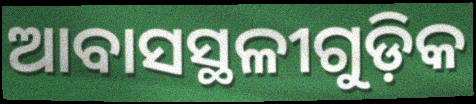
ଆବାସସ୍ଥଳୀଗୁଡ଼ିକ